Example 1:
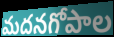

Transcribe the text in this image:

మదనగోపాల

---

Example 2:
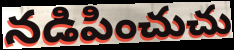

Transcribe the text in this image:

నడిపించుచు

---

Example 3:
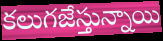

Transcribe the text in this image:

కలుగజేస్తున్నాయి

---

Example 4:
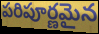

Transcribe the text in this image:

పరిపూర్ణమైన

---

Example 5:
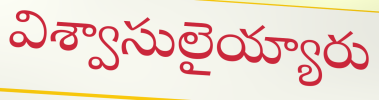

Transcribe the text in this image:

విశ్వాసులైయ్యారు